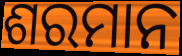
ଶରମାନ